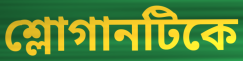
শ্লোগানটিকে